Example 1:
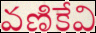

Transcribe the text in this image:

వణికేవి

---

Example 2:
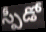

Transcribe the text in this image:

స్పీడో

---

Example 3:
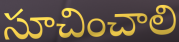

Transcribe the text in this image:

సూచించాలి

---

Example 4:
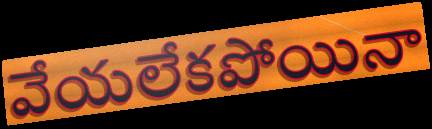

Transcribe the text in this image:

వేయలేకపోయినా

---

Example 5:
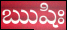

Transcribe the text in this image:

ఋషిః